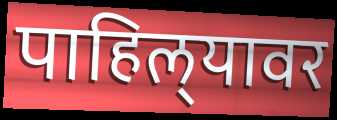
पाहिल्यावर